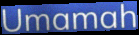
Umamah